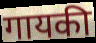
गायकी